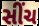
સીંચ